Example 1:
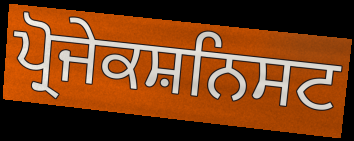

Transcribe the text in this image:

ਪ੍ਰੋਜੇਕਸ਼ਨਿਸਟ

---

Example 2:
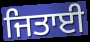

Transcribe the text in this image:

ਜਿਤਾਈ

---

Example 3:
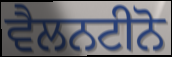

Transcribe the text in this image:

ਵੈਲਨਟੀਨੋ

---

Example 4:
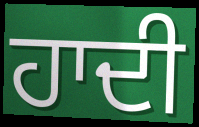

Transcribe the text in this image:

ਹਾਦੀ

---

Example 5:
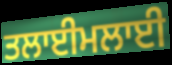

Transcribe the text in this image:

ਤਲਾਈਮਲਾਈ